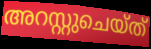
അറസ്റ്റുചെയ്ത്